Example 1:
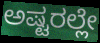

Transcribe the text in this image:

ಅಷ್ಟರಲ್ಲೇ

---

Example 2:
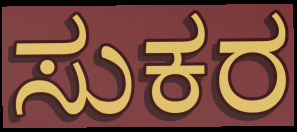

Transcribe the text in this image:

ಸುಕರ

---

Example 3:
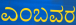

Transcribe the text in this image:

ಎಂಬವರ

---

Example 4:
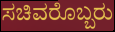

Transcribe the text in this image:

ಸಚಿವರೊಬ್ಬರು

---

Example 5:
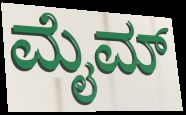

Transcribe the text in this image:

ಮೈಮ್